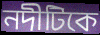
নদীটিকে